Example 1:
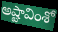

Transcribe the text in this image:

అష్టావింశో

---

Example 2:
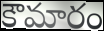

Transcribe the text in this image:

కౌమారం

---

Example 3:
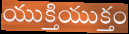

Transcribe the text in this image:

యుక్తియుక్తం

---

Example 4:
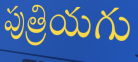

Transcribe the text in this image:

పుత్రియగు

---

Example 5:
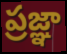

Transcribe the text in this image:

ప్రజ్ఞా